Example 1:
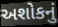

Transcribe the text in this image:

અશોકનું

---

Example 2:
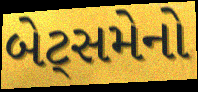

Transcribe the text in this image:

બેટ્સમેનો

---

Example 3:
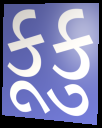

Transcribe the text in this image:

કૂકુ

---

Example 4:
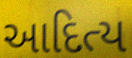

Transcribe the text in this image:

આદિત્ય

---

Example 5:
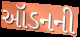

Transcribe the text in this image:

ઑડનની